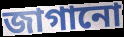
জাগানো